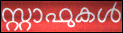
സ്റ്റാഫുകൾ